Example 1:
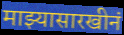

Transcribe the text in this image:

माझ्यासारखीनं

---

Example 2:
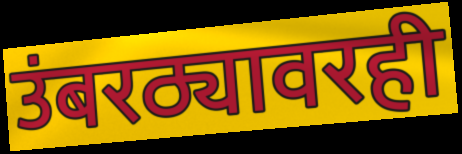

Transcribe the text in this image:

उंबरठ्यावरही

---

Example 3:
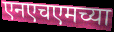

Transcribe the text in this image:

एनएचएमच्या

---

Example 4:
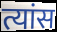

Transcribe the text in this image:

त्यांस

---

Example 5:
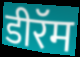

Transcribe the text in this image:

डीरॅम